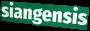
siangensis